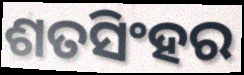
ଶତସିଂହର